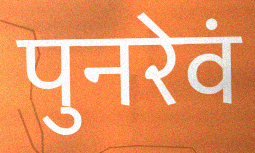
पुनरेवं